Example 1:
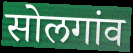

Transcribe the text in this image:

सोलगांव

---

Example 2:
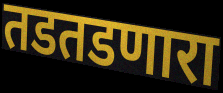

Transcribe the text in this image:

तडतडणारा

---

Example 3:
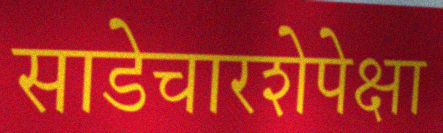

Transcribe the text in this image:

साडेचारशेपेक्षा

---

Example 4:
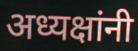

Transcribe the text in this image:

अध्यक्षांनी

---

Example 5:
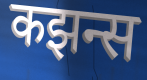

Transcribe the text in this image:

कझन्स